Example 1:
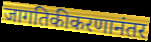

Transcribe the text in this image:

जागतिकीकरणानंतर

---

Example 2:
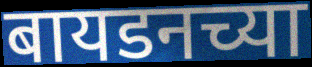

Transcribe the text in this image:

बायडनच्या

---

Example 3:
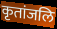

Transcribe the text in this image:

कृतांजलि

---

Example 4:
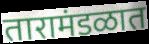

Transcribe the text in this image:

तारामंडळात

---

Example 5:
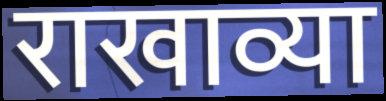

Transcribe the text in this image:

राखाव्या